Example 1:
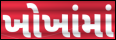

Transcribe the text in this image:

ખોખાંમાં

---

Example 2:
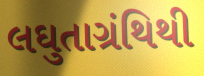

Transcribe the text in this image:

લઘુતાગ્રંથિથી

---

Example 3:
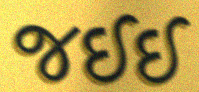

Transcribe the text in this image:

જઈઈ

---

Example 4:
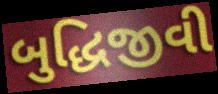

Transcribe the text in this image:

બુદ્ધિજીવી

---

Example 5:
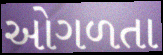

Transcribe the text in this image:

ઓગળતા